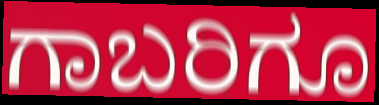
ಗಾಬರಿಗೂ